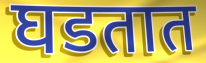
घडतात